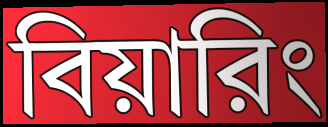
বিয়ারিং